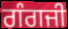
ਗੰਗਜੀ